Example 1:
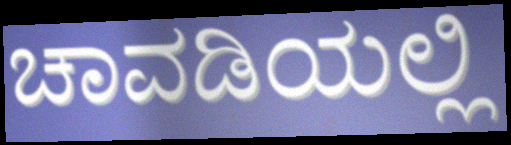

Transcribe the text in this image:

ಚಾವಡಿಯಲ್ಲಿ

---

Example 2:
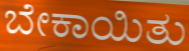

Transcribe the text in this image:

ಬೇಕಾಯಿತು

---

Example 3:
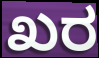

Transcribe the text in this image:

ಖರ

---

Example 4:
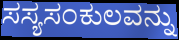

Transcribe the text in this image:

ಸಸ್ಯಸಂಕುಲವನ್ನು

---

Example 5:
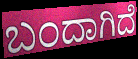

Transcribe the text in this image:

ಬಂದಾಗಿದೆ